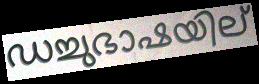
ഡച്ചുഭാഷയില്